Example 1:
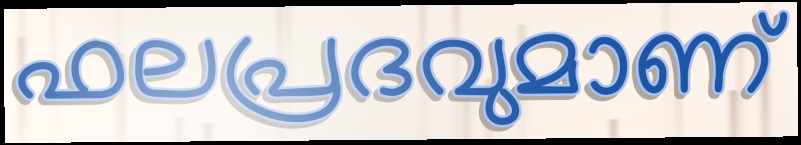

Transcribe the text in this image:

ഫലപ്രദവുമാണ്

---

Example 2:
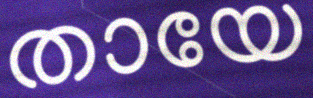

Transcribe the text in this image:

തായേ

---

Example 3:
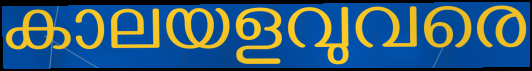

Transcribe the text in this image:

കാലയളവുവരെ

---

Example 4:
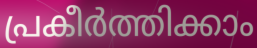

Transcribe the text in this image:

പ്രകീർത്തിക്കാം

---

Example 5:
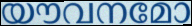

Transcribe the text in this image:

യൗവനമോ